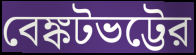
বেঙ্কটভট্টের